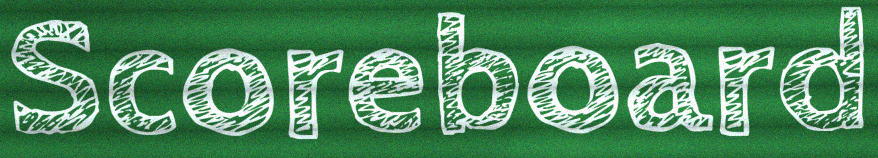
Scoreboard